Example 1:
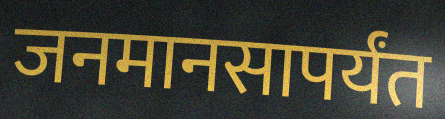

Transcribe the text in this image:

जनमानसापर्यंत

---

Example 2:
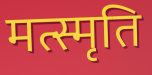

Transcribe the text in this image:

मत्स्मृति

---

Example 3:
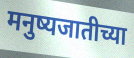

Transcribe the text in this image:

मनुष्यजातीच्या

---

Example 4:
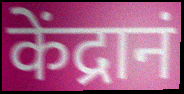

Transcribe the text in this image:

केंद्रानं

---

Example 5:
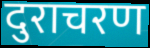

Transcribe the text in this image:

दुराचरण